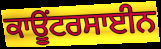
ਕਾਊਂਟਰਸਾਈਨ